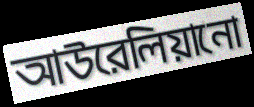
আউরেলিয়ানো